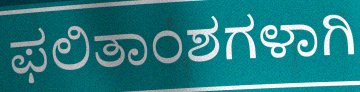
ಫಲಿತಾಂಶಗಳಾಗಿ